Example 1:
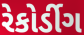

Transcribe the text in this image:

રેકોર્ડીગ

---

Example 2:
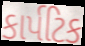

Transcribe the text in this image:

કાર્પટિક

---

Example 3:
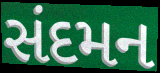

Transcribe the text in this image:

સંદમન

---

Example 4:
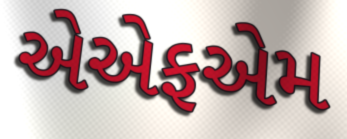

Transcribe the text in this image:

એએફએમ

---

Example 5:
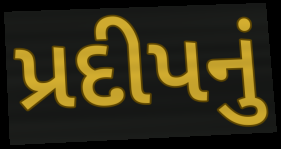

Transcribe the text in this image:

પ્રદીપનું